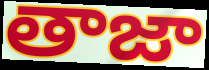
తాజా